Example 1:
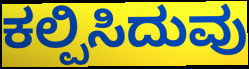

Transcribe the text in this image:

ಕಲ್ಪಿಸಿದುವು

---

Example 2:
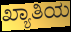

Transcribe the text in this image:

ಖ್ಯಾತಿಯ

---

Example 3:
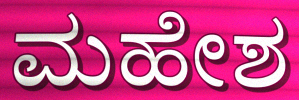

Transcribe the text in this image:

ಮಹೇಶ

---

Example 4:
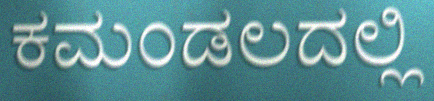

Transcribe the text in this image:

ಕಮಂಡಲದಲ್ಲಿ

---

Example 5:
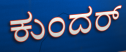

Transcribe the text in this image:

ಕುಂದರ್